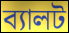
ব্যালট